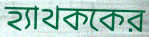
হ্যাথককের